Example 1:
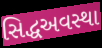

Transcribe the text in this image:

સિદ્ધઅવસ્થા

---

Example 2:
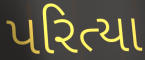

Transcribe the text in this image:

પરિત્યા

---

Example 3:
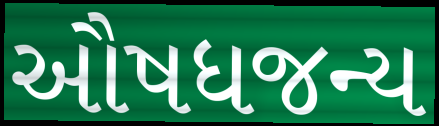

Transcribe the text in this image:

ઔષધજન્ય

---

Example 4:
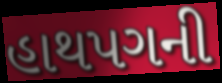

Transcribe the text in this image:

હાથપગની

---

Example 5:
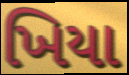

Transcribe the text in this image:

ખિયા